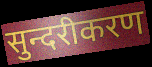
सुन्दरीकरण